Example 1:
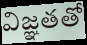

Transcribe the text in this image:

విజ్ఞతతో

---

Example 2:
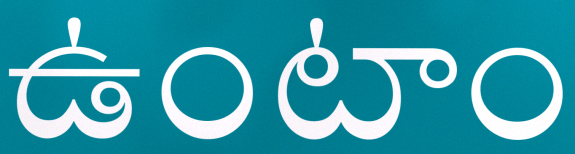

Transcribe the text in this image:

ఉంటాం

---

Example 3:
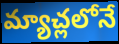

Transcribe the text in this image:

మ్యాచ్లలోనే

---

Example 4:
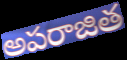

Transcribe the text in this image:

అపరాజిత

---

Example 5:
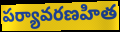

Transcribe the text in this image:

పర్యావరణహిత